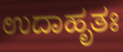
ಉದಾಹೃತಃ